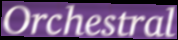
Orchestral